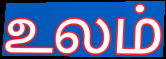
உலம்